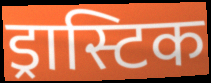
ड्रास्टिक